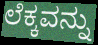
ಲೆಕ್ಕವನ್ನು